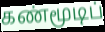
கண்மூடிப்